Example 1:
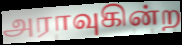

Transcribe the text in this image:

அராவுகின்ற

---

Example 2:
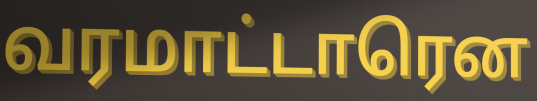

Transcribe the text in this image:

வரமாட்டாரென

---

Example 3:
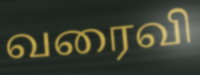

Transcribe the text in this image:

வரைவி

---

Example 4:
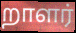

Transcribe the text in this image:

றாளர்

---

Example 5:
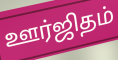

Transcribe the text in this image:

ஊர்ஜிதம்